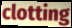
clotting